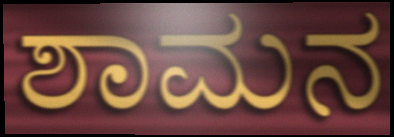
ಶಾಮನ